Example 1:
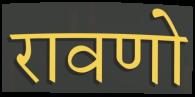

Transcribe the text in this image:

रावणो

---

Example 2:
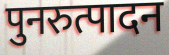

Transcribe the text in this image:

पुनरुत्पादन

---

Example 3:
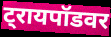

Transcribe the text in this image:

ट्रायपॉडवर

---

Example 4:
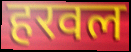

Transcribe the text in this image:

हरवल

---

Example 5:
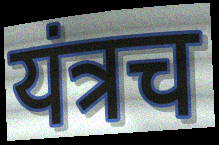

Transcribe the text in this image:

यंत्रच